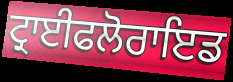
ਟ੍ਰਾਈਫਲੋਰਾਇਡ